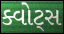
ક્વોટ્સ